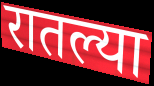
रातल्या